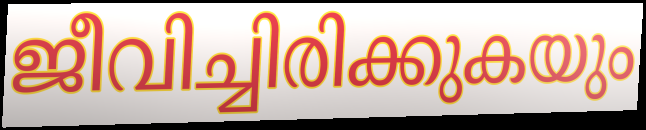
ജീവിച്ചിരിക്കുകയും